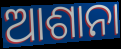
ଆଶାନା